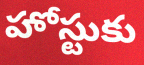
హోస్టుకు